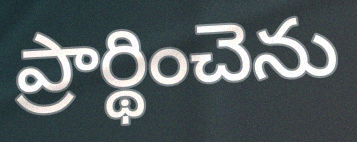
ప్రార్థించెను